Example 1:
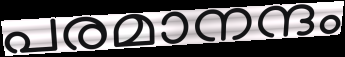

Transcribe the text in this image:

പരമാനന്ദം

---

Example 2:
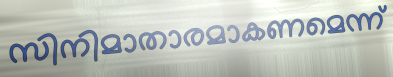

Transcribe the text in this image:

സിനിമാതാരമാകണമെന്ന്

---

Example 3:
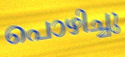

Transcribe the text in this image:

പൊഴിച്ചു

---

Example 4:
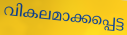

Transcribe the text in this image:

വികലമാക്കപ്പെട്ട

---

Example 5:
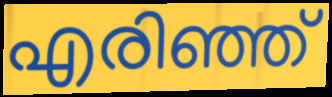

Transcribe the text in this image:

എരിഞ്ഞ്